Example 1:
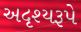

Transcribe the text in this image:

અદૃશ્યરૂપે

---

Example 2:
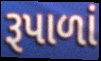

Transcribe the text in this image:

રૂપાળાં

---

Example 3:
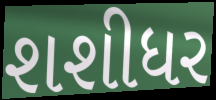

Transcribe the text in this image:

શશીધર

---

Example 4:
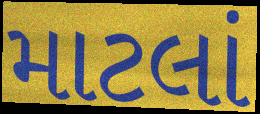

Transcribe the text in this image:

માટલાં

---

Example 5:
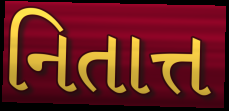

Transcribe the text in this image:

નિતાત્ત